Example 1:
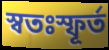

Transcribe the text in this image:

স্বতঃস্ফূৰ্ত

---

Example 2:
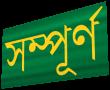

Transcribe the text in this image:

সম্পূৰ্ণ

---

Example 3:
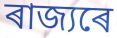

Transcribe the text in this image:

ৰাজ্যৰে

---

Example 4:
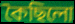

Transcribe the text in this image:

কৈছিলো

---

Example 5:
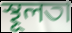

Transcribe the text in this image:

স্থূলতা